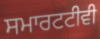
ਸਮਾਰਟਟੀਵੀ